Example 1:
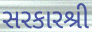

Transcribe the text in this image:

સરકારશ્રી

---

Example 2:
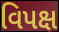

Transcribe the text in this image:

વિપક્ષ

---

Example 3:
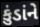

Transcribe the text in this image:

કુંડાંને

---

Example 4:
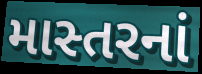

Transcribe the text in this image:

માસ્તરનાં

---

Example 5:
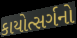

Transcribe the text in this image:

કાયોત્સર્ગનો